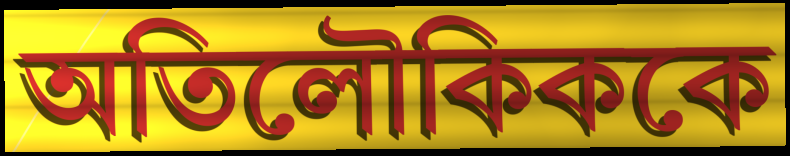
অতিলৌকিককে